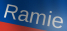
Ramie